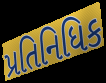
પ્રતિનિધિક